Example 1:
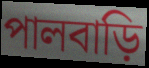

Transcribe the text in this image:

পালবাড়ি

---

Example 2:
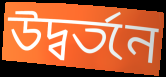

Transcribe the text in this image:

উদ্বর্তনে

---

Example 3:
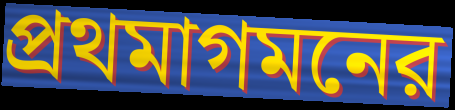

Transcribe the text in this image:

প্রথমাগমনের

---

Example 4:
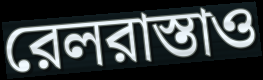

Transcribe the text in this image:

রেলরাস্তাও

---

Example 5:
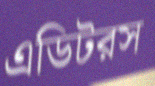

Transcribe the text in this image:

এডিটরস